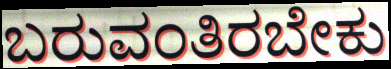
ಬರುವಂತಿರಬೇಕು